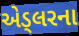
એડ્લરના